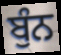
ਬੁੰਨ